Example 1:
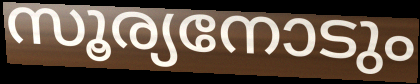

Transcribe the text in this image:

സൂര്യനോടും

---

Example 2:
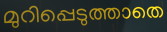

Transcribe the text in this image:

മുറിപ്പെടുത്താതെ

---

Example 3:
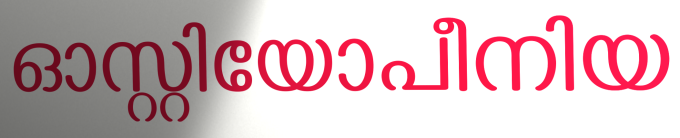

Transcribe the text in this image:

ഓസ്റ്റിയോപീനിയ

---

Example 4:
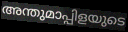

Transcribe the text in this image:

അന്തുമാപ്പിളയുടെ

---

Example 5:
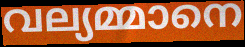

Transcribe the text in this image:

വല്യമ്മാനെ